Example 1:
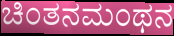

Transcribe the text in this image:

ಚಿಂತನಮಂಥನ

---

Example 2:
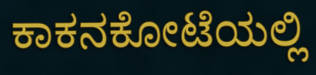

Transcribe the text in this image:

ಕಾಕನಕೋಟೆಯಲ್ಲಿ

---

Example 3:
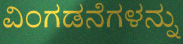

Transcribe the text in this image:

ವಿಂಗಡನೆಗಳನ್ನು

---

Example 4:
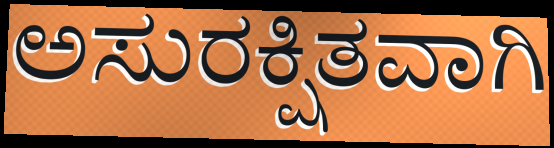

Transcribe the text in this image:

ಅಸುರಕ್ಷಿತವಾಗಿ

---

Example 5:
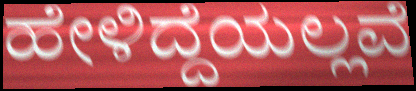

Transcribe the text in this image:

ಹೇಳಿದ್ದೆಯಲ್ಲವೆ